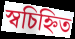
স্বচিহ্নিত